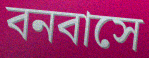
বনবাসে